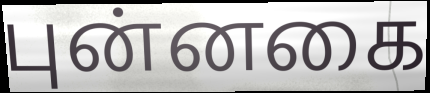
புன்னகை